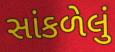
સાંકળેલું